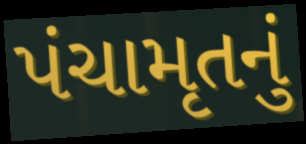
પંચામૃતનું